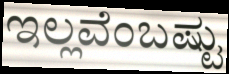
ಇಲ್ಲವೆಂಬಷ್ಟು